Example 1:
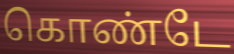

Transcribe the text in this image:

கொண்டே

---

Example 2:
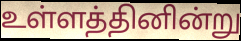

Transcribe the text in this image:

உள்ளத்தினின்று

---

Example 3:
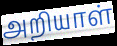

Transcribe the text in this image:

அறியாள்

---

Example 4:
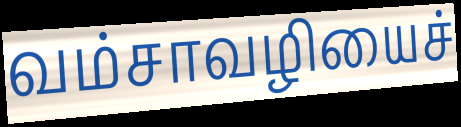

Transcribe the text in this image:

வம்சாவழியைச்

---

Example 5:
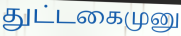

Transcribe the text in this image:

துட்டகைமுனு